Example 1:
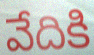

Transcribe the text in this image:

వేదికి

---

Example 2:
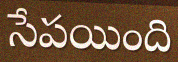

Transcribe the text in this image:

సేపయింది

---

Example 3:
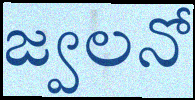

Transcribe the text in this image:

జ్వలనో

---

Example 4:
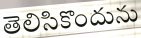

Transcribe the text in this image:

తెలిసికొందును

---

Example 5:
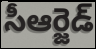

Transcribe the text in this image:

సీఆర్జెడ్